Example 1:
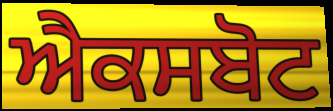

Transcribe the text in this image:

ਐਕਸਬੋਟ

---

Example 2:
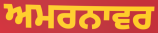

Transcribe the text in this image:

ਅਮਰਨਾਵਰ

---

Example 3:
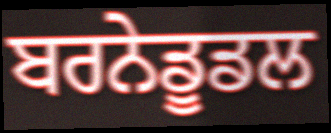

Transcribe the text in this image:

ਬਰਨੇਡੂਡਲ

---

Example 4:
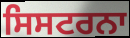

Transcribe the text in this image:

ਸਿਸਟਰਨਾ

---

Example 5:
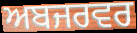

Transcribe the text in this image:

ਅਬਜਰਵਰ